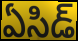
ఏసిడ్